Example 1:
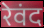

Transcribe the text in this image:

रेवंद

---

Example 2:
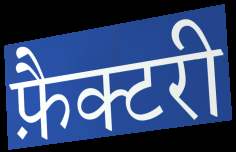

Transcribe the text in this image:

फ़ैक्टरी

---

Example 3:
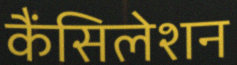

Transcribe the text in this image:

कैंसिलेशन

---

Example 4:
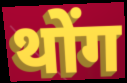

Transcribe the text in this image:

थोंग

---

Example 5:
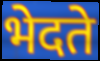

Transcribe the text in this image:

भेदते